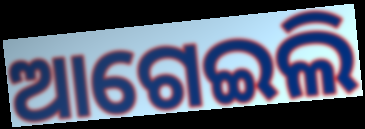
ଆଗେଇଲି